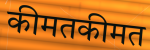
कीमतकीमत